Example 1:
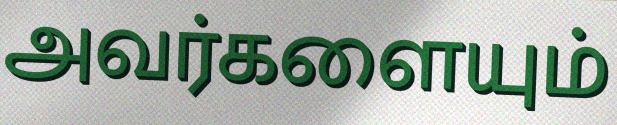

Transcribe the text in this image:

அவர்களையும்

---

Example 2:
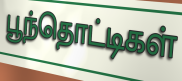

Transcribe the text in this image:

பூந்தொட்டிகள்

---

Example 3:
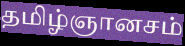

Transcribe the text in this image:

தமிழ்ஞானசம்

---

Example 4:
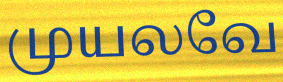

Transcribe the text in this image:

முயலவே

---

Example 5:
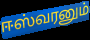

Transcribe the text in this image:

ஈஸ்வரனும்